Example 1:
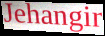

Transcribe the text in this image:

Jehangir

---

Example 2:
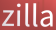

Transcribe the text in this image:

zilla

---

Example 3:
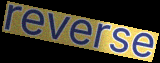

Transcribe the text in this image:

reverse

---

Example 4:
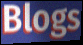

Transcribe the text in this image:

Blogs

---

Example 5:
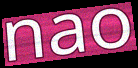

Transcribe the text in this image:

nao